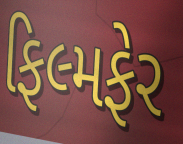
ફિલ્મફેર